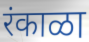
रंकाळा